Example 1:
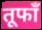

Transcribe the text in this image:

तूफाँ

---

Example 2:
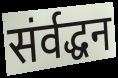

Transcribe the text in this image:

संर्वद्धन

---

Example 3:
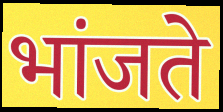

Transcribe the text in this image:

भांजते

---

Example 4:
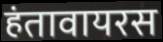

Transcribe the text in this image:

हंतावायरस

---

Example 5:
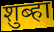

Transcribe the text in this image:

शुब्हा